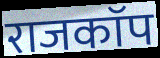
राजकॉप